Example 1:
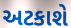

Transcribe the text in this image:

અટકાશે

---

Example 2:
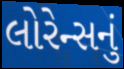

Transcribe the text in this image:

લોરેન્સનું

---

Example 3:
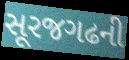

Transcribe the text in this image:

સૂરજગઢની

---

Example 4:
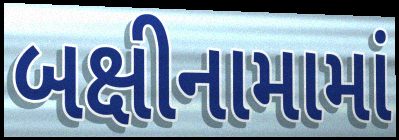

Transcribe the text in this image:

બક્ષીનામામાં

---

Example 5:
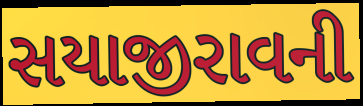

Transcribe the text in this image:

સયાજીરાવની